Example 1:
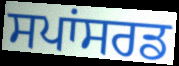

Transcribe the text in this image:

ਸਪਾਂਸਰਡ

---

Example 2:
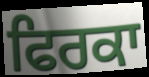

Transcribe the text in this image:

ਫਿਰਕਾ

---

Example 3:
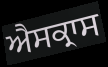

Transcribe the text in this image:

ਐਸਕ੍ਰਾਸ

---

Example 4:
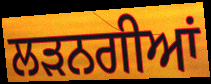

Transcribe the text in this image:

ਲੜਨਗੀਆਂ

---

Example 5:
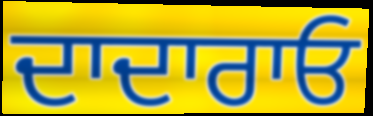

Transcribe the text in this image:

ਦਾਦਾਰਾਓ